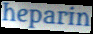
heparin